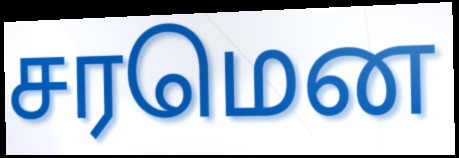
சரமென